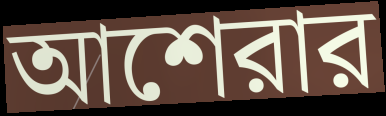
আশেরার